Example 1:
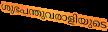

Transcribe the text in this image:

ശുഭപന്തുവരാളിയുടെ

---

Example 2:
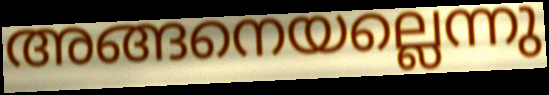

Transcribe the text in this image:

അങ്ങനെയല്ലെന്നു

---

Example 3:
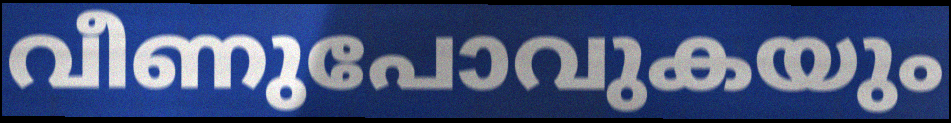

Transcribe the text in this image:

വീണുപോവുകയും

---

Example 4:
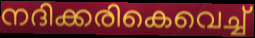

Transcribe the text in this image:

നദിക്കരികെവെച്ച്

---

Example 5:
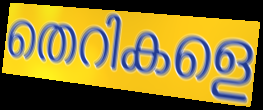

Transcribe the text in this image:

തെറികളെ